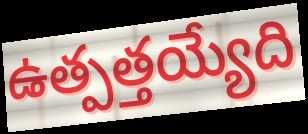
ఉత్పత్తయ్యేది